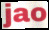
jao